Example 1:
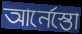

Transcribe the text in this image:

আর্নেস্তো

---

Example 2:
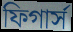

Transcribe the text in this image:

ফিগার্স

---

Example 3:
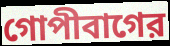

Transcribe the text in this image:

গোপীবাগের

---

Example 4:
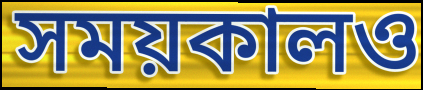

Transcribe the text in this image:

সময়কালও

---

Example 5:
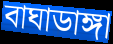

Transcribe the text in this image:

বাঘাডাঙ্গা